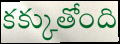
కక్కుతోంది